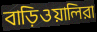
বাড়িওয়ালিরা